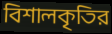
বিশালকৃতির